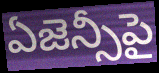
ఏజెన్సీపై